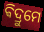
ଵିଦ୍ରୁମେ